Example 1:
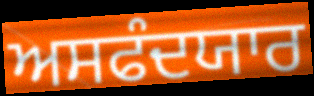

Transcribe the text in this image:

ਅਸਫੰਦਯਾਰ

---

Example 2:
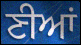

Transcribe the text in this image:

ਣੀਆਂ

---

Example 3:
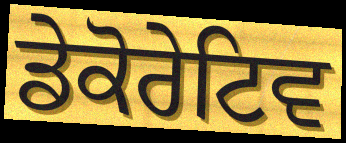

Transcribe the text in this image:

ਡੇਕੋਰੇਟਿਵ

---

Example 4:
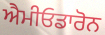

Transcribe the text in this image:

ਐਮੀਓਡਾਰੋਨ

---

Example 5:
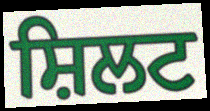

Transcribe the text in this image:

ਸ਼ਿਲਟ